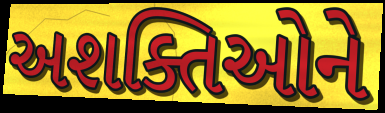
અશક્તિઓને